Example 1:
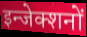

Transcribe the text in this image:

इन्जेक्शनों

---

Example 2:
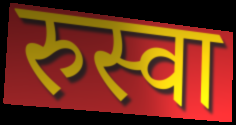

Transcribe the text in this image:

रुस्वा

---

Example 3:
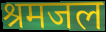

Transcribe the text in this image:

श्रमजल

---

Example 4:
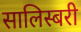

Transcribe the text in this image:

सालिस्बरी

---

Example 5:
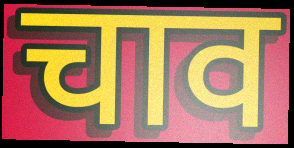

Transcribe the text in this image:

चाव